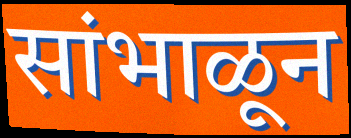
सांभाळून